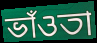
ভাঁওতা